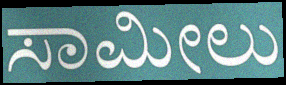
ಸಾಮೀಲು